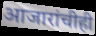
आजारांचीही